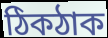
ঠিকঠাক